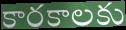
కారకాలకు